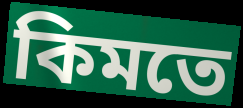
কিমতে